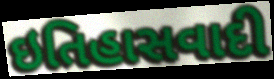
ઇતિહાસવાદી